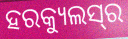
ହରକ୍ୟୁଲସ୍‍ର